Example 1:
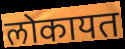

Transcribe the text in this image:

लोकायत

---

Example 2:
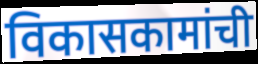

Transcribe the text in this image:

विकासकामांची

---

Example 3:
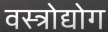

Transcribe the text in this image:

वस्त्रोद्योग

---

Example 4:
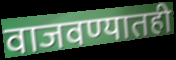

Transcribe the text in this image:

वाजवण्यातही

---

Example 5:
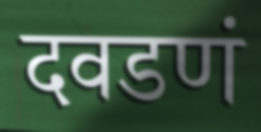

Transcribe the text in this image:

दवडणं